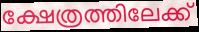
ക്ഷേത്രത്തിലേക്ക്